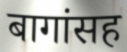
बागांसह